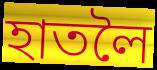
হাতলৈ